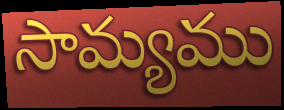
సామ్యము